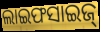
ଲାଇଫସାଇଜ୍